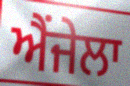
ਐਂਜੇਲਾ